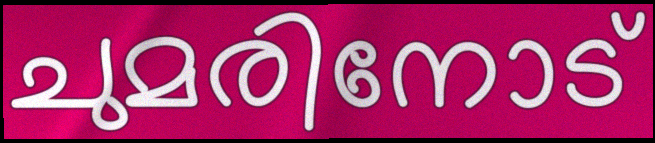
ചുമരിനോട്